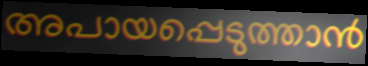
അപായപ്പെടുത്താൻ